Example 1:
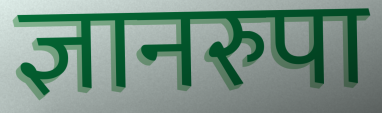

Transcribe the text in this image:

ज्ञानरुपा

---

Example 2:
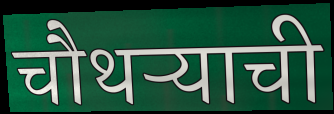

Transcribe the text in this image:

चौथऱ्याची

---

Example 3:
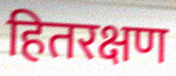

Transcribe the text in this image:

हितरक्षण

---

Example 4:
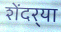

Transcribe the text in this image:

शेंदर्‍या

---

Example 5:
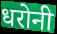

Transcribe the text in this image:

धरोनी